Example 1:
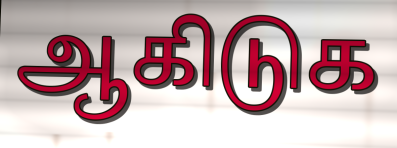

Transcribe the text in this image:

ஆகிடுக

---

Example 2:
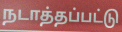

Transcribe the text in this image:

நடாத்தப்பட்டு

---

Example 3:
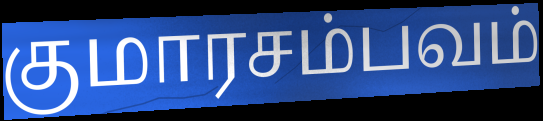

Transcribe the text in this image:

குமாரசம்பவம்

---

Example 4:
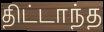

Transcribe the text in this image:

திட்டாந்த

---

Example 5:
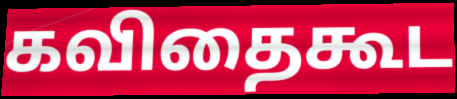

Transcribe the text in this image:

கவிதைகூட